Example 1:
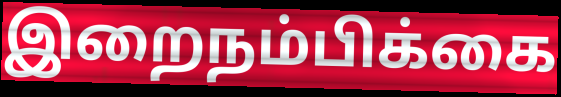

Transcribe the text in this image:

இறைநம்பிக்கை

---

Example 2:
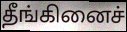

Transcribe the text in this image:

தீங்கினைச்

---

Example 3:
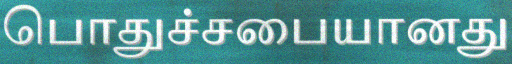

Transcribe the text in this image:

பொதுச்சபையானது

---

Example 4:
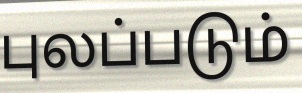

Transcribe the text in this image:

புலப்படும்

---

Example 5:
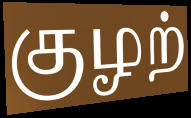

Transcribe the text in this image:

குழற்